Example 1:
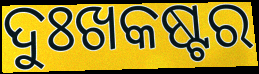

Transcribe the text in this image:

ଦୁଃଖକଷ୍ଟର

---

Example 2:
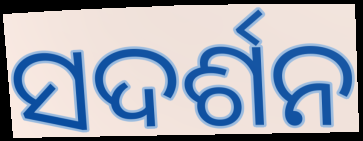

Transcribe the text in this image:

ସଦର୍ଶନ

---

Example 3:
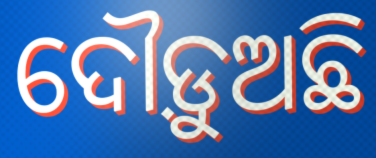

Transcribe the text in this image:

ଦୌଡ଼ୁଅଛି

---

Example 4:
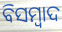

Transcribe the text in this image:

ବିସମ୍ୱାଦ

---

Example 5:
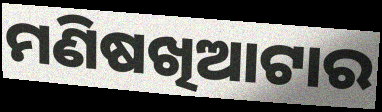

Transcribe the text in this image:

ମଣିଷଖିଆଟାର